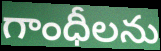
గాంధీలను